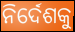
ନିର୍ଦେଶକୁ